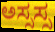
ಅಸ್ಸಸ್ಸ